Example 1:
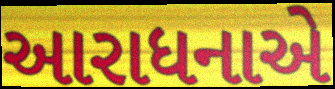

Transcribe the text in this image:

આરાધનાએ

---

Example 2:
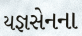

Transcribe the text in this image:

યજ્ઞસેનના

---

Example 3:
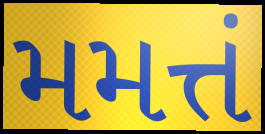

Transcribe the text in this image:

મમત્તં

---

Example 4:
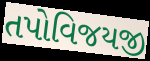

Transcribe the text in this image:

તપોવિજયજી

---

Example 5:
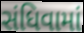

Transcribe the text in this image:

સંધિવામાં